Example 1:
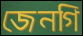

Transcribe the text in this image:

জেনগি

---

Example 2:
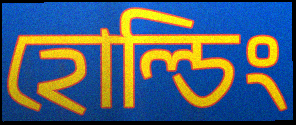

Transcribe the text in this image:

হোল্ডিং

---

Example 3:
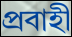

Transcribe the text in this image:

প্রবাহী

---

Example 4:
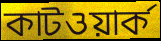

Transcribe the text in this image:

কাটওয়ার্ক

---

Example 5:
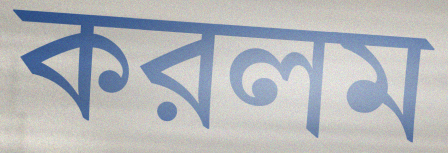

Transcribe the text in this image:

করলম